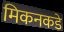
मिकनकडे